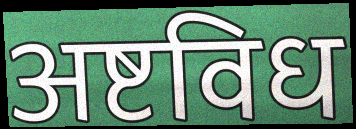
अष्टविध